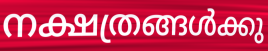
നക്ഷത്രങ്ങൾക്കു